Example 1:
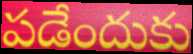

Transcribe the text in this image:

పడేందుకు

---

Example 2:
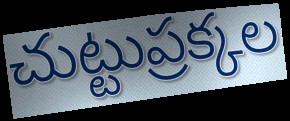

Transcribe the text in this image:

చుట్టుప్రక్కల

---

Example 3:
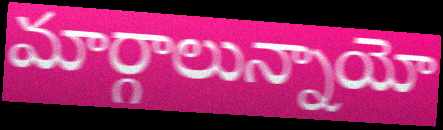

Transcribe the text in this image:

మార్గాలున్నాయో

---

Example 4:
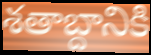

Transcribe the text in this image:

శతాబ్దానికి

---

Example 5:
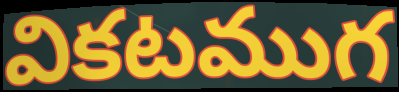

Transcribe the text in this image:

వికటముగ